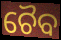
ଚୈବ